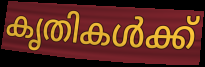
കൃതികൾക്ക്